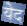
येद